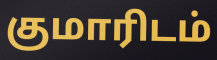
குமாரிடம்